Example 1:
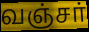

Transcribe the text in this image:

வஞ்சர்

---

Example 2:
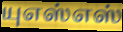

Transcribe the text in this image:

யுஎஸ்எஸ்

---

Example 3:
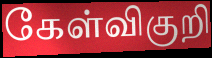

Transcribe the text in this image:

கேள்விகுறி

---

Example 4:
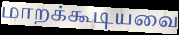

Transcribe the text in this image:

மாறக்கூடியவை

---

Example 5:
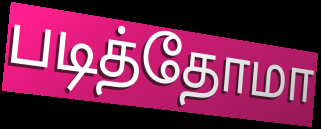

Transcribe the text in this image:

படித்தோமா